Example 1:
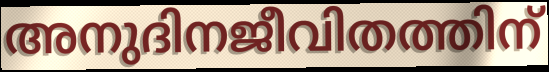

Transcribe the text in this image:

അനുദിനജീവിതത്തിന്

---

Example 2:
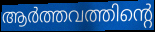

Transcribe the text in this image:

ആർത്തവത്തിന്റെ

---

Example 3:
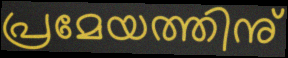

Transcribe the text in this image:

പ്രമേയത്തിനു്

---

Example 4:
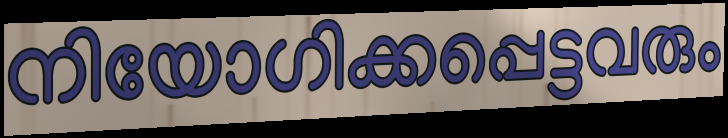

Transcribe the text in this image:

നിയോഗിക്കപ്പെട്ടവരും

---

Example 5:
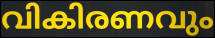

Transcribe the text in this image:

വികിരണവും